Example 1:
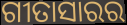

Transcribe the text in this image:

ଗୀତାସାରର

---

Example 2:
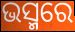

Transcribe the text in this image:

ଭସ୍ମରେ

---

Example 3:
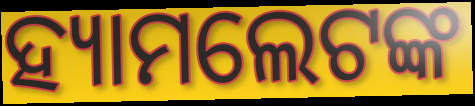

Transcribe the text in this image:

ହ୍ୟାମଲେଟଙ୍କ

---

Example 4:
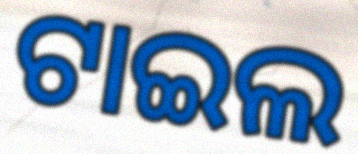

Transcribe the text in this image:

ଟାଇଲ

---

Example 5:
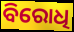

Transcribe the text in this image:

ବିରୋଧି